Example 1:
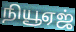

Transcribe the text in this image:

நியூஏஜ்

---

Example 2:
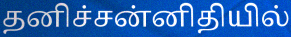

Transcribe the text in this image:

தனிச்சன்னிதியில்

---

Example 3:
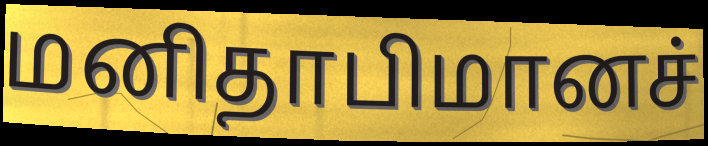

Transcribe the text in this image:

மனிதாபிமானச்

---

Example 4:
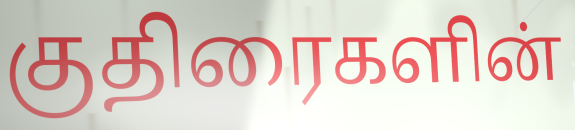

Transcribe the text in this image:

குதிரைகளின்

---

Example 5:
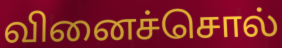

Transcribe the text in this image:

வினைச்சொல்